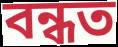
বন্ধত